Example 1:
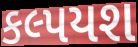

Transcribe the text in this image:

કલ્પયશ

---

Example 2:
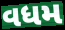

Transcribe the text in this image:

વધમ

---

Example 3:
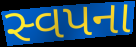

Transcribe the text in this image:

સ્વપના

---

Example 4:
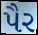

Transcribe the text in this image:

પૈર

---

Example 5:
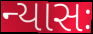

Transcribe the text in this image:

ન્યાસઃ